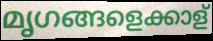
മൃഗങ്ങളെക്കാള്